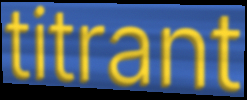
titrant